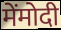
मेंमोदी